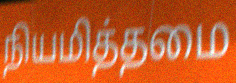
நியமித்தமை